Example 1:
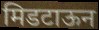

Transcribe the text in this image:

मिडटाऊन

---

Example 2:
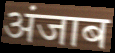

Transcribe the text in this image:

अंजाब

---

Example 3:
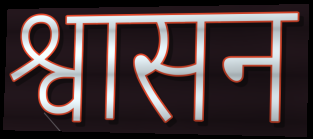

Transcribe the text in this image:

श्वासन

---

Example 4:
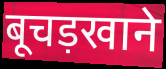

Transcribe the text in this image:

बूचड़खाने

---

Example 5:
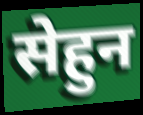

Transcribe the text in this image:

सेहुन